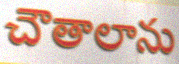
చౌతాలాను